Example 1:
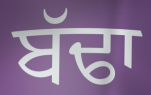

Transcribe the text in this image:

ਬੱਢਾ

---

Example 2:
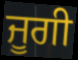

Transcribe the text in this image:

ਜੂਗੀ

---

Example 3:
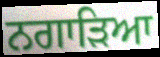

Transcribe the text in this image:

ਨਗਾੜਿਆ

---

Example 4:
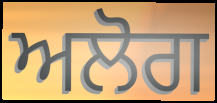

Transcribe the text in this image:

ਅਲੋਗ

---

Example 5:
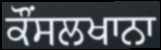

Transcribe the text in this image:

ਕੌਂਸਲਖਾਨਾ